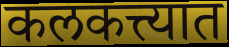
कलकत्त्यात